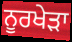
ਨੂਰਖੇੜਾ